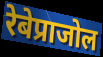
रेबेप्राजोल